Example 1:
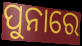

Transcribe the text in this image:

ପୁନାରେ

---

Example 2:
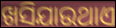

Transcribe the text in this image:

ଖସିଯାଉଥାଏ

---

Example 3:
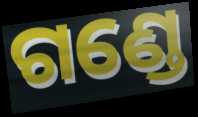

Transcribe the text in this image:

ଗଣ୍ଡେ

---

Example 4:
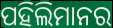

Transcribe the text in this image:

ପହିଲିମାନର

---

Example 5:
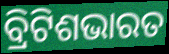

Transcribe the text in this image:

ବ୍ରିଟିଶଭାରତ